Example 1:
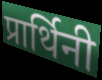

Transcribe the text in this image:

प्रार्थिनी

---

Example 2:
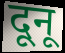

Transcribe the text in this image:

दूनू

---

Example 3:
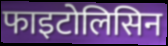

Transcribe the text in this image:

फाइटोलिसिन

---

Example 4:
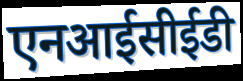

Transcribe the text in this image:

एनआईसीईडी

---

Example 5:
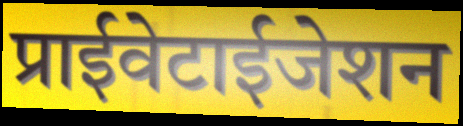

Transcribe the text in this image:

प्राईवेटाईजेशन